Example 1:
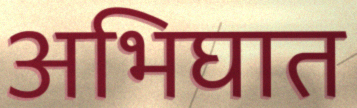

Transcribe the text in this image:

अभिघात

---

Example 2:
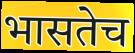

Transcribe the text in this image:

भासतेच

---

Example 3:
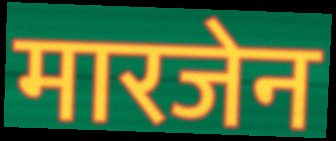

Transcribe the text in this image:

मारजेन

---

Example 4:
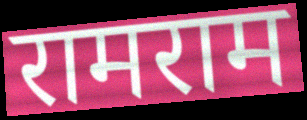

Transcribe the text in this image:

रामराम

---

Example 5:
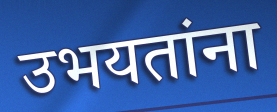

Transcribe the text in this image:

उभयतांना